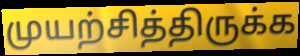
முயற்சித்திருக்க